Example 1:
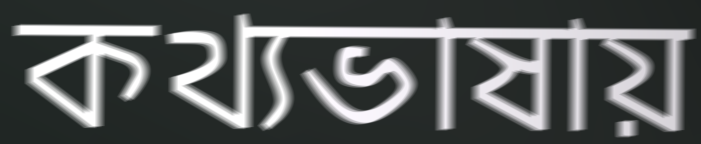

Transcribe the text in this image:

কথ্যভাষায়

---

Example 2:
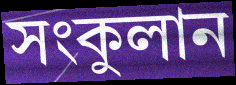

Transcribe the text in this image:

সংকুলান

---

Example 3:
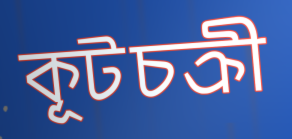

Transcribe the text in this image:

কূটচক্রী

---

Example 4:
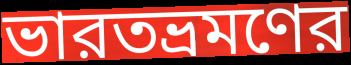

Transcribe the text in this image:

ভারতভ্রমণের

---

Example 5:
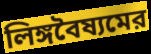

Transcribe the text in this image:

লিঙ্গবৈষ্যমের